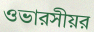
ওভারসীয়র